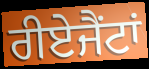
ਰੀਏਜੈਂਟਾਂ